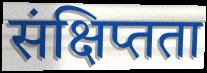
संक्षिप्तता